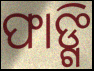
ଫାଙ୍ଗି